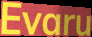
Evaru